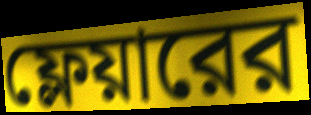
ফ্লেয়ারের